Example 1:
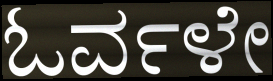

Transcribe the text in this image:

ಓರ್ವಳೇ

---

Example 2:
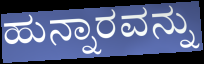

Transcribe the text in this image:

ಹುನ್ನಾರವನ್ನು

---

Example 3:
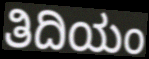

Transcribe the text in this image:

ತಿದಿಯಂ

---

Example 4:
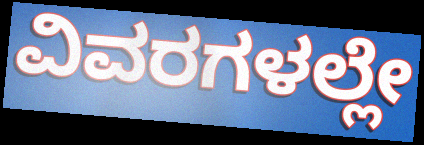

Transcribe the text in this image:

ವಿವರಗಳಲ್ಲೇ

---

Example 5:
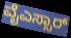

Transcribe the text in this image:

ವೈಎಸ್ಸಾರ್